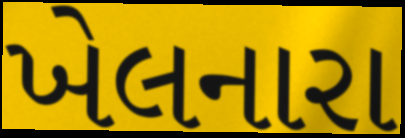
ખેલનારા